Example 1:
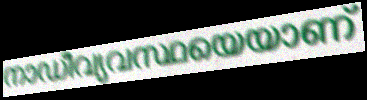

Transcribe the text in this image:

നാഡീവ്യവസ്ഥയെയാണ്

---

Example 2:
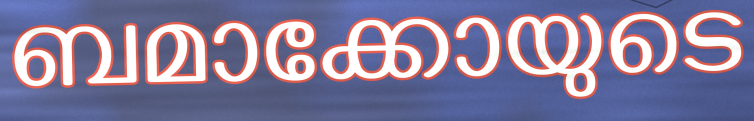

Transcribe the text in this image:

ബമാക്കോയുടെ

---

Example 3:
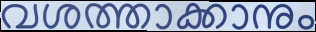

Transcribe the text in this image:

വശത്താക്കാനും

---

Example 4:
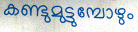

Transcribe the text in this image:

കണ്ടുമുട്ടുമ്പോഴും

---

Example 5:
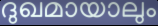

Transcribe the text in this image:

ദുഖമായാലും